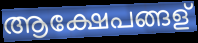
ആക്ഷേപങ്ങള്